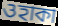
ওহাকা